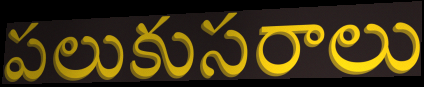
పలుకుసరాలు